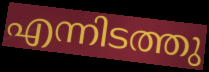
എന്നിടത്തു